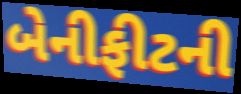
બેનીફીટની